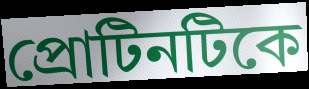
প্রোটিনটিকে